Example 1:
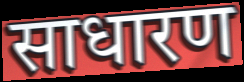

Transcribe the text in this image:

साधारण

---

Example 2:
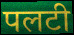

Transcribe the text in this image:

पलटी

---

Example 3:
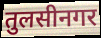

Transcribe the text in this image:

तुलसीनगर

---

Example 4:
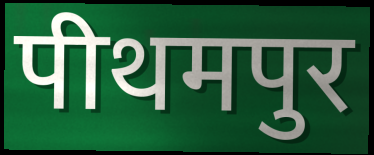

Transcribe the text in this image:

पीथमपुर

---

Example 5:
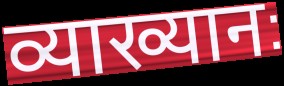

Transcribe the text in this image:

व्याख्यानः